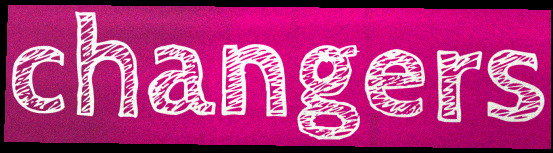
changers